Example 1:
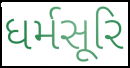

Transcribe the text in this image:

ધર્મસૂરિ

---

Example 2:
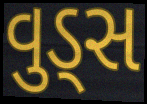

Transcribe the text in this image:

વુડ્સ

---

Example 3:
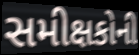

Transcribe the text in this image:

સમીક્ષકોની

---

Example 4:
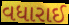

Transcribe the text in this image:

વધારાઈ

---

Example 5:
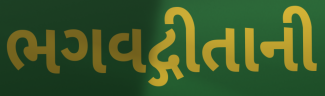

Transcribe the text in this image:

ભગવદ્ગીતાની